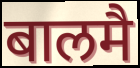
बालमै